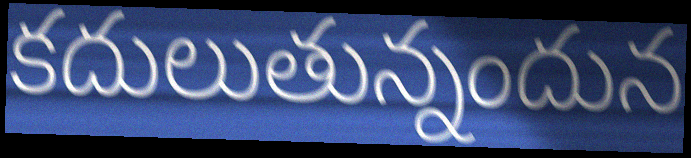
కదులుతున్నందున